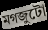
মগজুটো